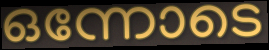
ഒന്നോടെ